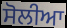
ਸੋਲੀਆ